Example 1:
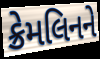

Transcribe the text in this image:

ક્રેમલિનને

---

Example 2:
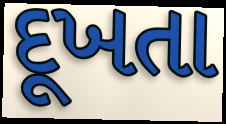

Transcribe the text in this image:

દૂખતા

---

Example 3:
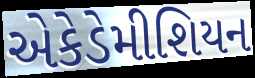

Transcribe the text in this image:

એકેડેમીશિયન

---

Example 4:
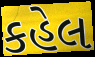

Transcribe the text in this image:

કહેલ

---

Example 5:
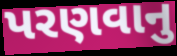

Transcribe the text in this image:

પરણવાનુ